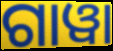
ଗାୱା